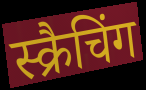
स्क्रैचिंग